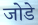
जोडे